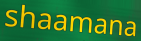
shaamana